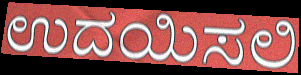
ಉದಯಿಸಲಿ